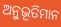
ଅନୁଭୂତିମାନ